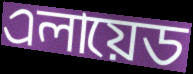
এলায়েড